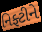
નિફ્ટીને